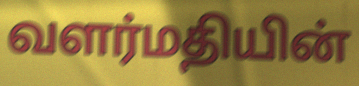
வளர்மதியின்